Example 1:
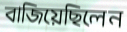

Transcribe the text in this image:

বাজিয়েছিলেন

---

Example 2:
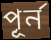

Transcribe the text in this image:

পূর্ন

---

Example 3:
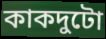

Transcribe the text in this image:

কাকদুটো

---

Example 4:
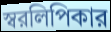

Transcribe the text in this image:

স্বরলিপিকার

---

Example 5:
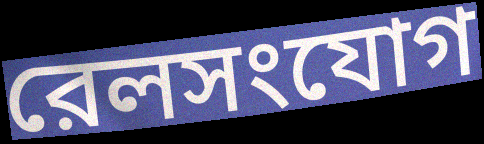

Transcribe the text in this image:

রেলসংযোগ